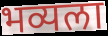
भव्यला